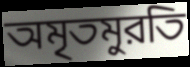
অমৃতমুরতি